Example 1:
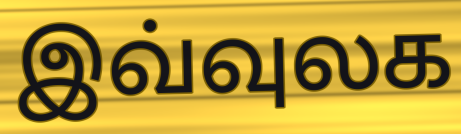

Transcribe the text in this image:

இவ்வுலக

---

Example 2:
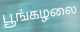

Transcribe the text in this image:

பூங்கழலை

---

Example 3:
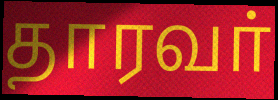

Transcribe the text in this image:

தாரவர்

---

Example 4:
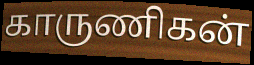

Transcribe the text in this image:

காருணிகன்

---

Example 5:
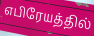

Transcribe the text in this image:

எபிரேயத்தில்